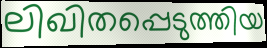
ലിഖിതപ്പെടുത്തിയ